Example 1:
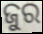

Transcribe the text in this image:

ଜୁର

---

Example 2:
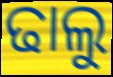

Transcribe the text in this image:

ଢାଲୁ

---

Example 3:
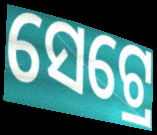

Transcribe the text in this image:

ସେଟ୍ରେ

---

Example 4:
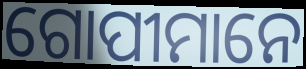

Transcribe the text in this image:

ଗୋପୀମାନେ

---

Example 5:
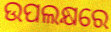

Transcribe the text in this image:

ଉପଲକ୍ଷରେ